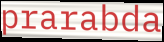
prarabda